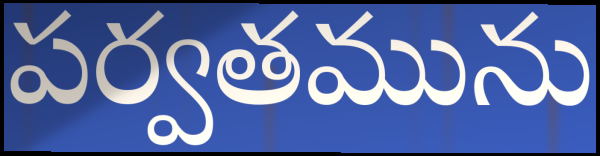
పర్వతమును